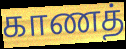
காணத்